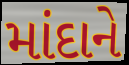
માંદાને